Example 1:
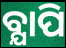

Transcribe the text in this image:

ବ୍ଯାପି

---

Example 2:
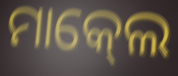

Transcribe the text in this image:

ମାକ୍‍ଲେ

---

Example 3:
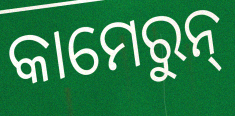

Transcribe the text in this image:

କାମେରୁନ୍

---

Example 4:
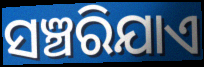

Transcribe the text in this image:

ସଞ୍ଚରିଯାଏ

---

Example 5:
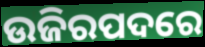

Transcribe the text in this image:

ଉଜିରପଦରେ